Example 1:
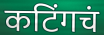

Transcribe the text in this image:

कटिंगचं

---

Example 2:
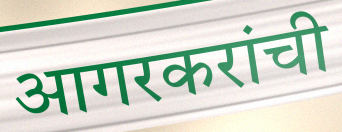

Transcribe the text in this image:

आगरकरांची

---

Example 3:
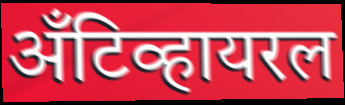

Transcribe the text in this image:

अँटिव्हायरल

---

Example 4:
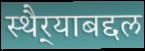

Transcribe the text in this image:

स्थैर्याबद्दल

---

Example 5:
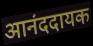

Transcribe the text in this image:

आनंददायक